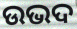
ଉଭଦ